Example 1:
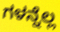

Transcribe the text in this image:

ಗಳನ್ನೆಲ್ಲ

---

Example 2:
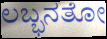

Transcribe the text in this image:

ಲಬ್ಭನತೋ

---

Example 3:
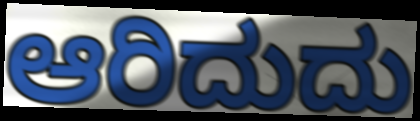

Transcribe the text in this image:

ಆರಿದುದು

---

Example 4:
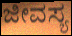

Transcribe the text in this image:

ಜೀವಸ್ಯ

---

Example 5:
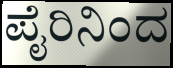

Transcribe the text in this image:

ಪೈರಿನಿಂದ